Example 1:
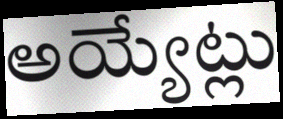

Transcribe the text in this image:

అయ్యేట్లు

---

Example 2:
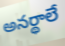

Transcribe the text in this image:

అనర్థాలే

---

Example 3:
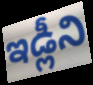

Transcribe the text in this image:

ఇడ్లీని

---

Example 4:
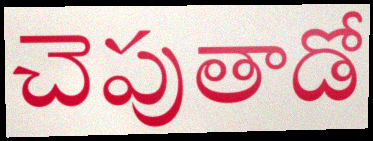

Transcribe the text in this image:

చెపుతాడో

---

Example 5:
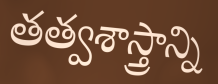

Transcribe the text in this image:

తత్వశాస్త్రాన్ని